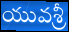
యువశ్రీ